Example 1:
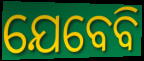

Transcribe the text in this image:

ଯେବେବି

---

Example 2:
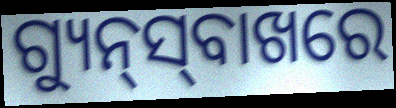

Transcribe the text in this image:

ଗ୍ୟୁନ୍‍ସ୍‍ବାଖରେ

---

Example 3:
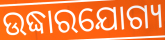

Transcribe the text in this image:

ଉଦ୍ଧାରଯୋଗ୍ୟ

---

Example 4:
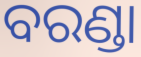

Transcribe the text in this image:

ବରଣ୍ଡା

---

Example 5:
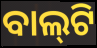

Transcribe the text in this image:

ବାଲ୍‍ଟି